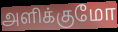
அளிக்குமோ